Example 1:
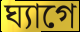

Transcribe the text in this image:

ঘ্যাগে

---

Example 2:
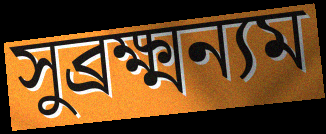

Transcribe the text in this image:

সুব্রক্ষ্মন্যম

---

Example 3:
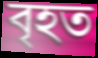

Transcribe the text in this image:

বৃহত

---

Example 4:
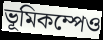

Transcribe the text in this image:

ভূমিকম্পেও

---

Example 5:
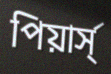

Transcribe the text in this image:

পিয়ার্স্